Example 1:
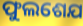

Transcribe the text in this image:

ଫୁଲଶେଯ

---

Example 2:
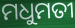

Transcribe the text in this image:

ମଧୁମତୀ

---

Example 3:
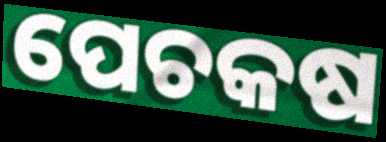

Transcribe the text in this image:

ପେଚକଷ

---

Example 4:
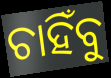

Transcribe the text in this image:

ଚାହିଁବୁ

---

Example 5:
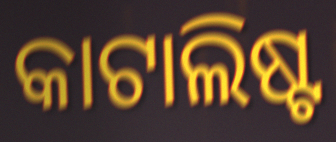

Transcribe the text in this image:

କାଟାଲିଷ୍ଟ